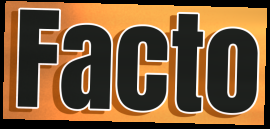
Facto